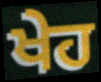
ਖੇਹ